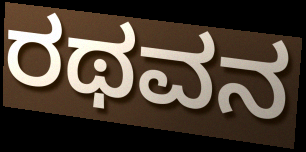
ರಥವನ